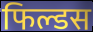
फिल्डस